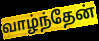
வாழ்ந்தேன்